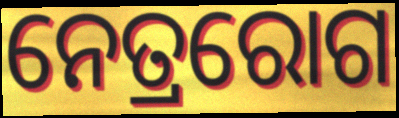
ନେତ୍ରରୋଗ